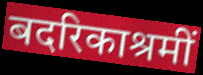
बदरिकाश्रमीं